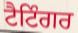
ਟੈਟਿੰਗਰ